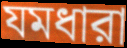
যমধারা